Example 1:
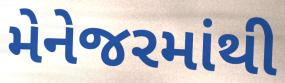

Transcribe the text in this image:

મેનેજરમાંથી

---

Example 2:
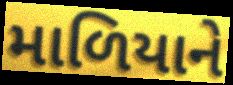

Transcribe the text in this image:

માળિયાને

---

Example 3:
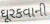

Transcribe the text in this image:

ઘૂરકવાની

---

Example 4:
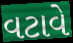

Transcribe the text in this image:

વટાવે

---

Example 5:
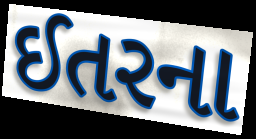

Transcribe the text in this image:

ઈતરના